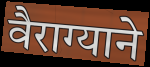
वैराग्याने